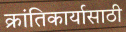
क्रांतिकार्यासाठी